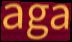
aga